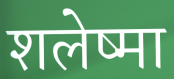
शलेष्मा